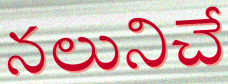
నలునిచే